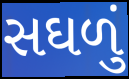
સઘળું